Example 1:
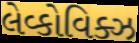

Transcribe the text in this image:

લેવ્કોવિક્ઝ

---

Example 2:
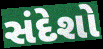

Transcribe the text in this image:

સંદેશો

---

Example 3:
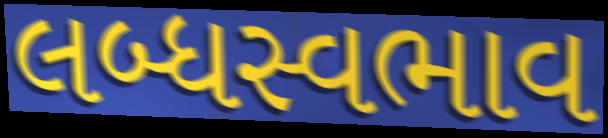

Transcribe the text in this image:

લબ્ધસ્વભાવ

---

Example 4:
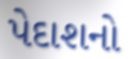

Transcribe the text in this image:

પેદાશનો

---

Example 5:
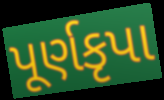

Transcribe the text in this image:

પૂર્ણકૃપા